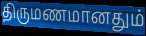
திருமணமானதும்